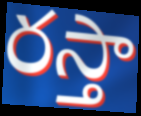
రస్తా